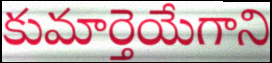
కుమార్తెయేగాని